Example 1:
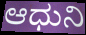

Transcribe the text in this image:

ಆಧುನಿ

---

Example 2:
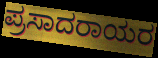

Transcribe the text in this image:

ಪ್ರಸಾದರಾಯರ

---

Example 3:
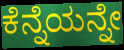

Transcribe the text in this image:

ಕೆನ್ನೆಯನ್ನೇ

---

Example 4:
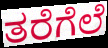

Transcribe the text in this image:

ತರೆಗೆಲೆ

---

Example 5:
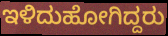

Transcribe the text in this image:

ಇಳಿದುಹೋಗಿದ್ದರು